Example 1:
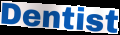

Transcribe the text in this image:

Dentist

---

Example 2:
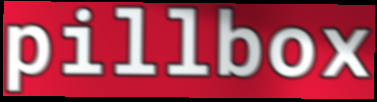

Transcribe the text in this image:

pillbox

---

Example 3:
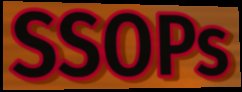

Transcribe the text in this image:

SSOPs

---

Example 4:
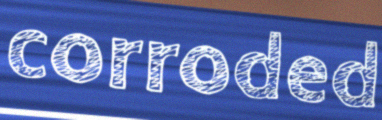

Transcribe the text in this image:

corroded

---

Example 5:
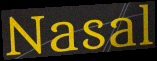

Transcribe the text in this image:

Nasal